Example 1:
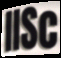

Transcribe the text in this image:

IISc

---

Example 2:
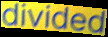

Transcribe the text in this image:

divided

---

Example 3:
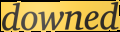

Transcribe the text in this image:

downed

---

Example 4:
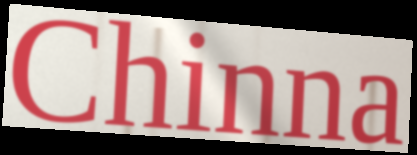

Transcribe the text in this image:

Chinna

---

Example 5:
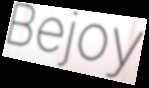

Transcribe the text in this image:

Bejoy